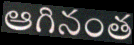
ఆగినంత